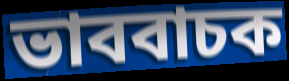
ভাববাচক